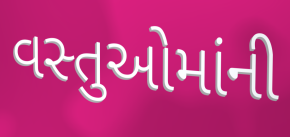
વસ્તુઓમાંની